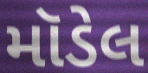
મૉડેલ